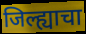
जिल्ह्याचा